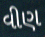
વીણ